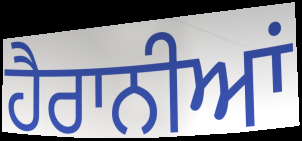
ਹੈਰਾਨੀਆਂ